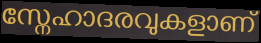
സ്നേഹാദരവുകളാണ്